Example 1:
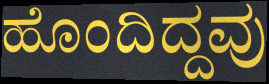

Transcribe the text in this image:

ಹೊಂದಿದ್ದವು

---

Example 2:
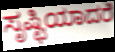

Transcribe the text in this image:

ಸೃಷ್ಟಿಯಾದರೆ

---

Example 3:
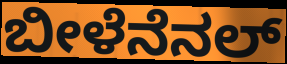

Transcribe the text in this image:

ಬೀಳೆನೆನಲ್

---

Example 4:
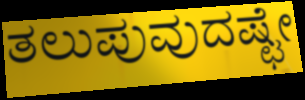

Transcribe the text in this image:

ತಲುಪುವುದಷ್ಟೇ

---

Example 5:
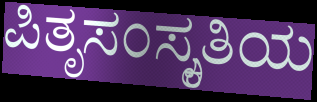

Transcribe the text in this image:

ಪಿತೃಸಂಸ್ಕೃತಿಯ